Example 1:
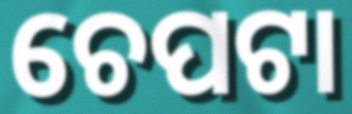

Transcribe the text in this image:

ଚେପଟା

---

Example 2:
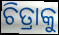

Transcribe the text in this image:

ଚିତ୍ରାକୁ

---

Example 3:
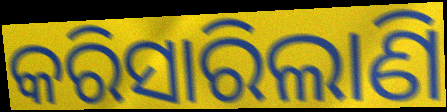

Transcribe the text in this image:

କରିସାରିଲାଣି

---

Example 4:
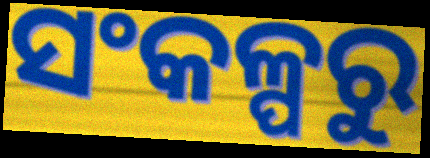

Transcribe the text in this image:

ସଂକଳ୍ପରୁ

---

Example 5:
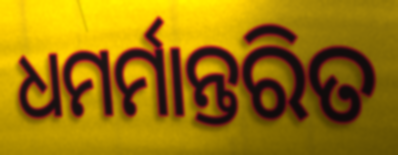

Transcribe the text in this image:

ଧମର୍ମାନ୍ତରିତ